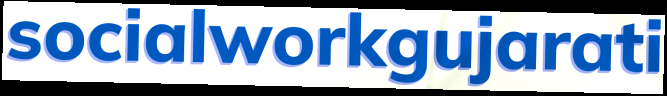
socialworkgujarati